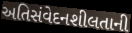
અતિસંવેદનશીલતાની